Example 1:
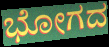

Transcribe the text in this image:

ಭೋಗದ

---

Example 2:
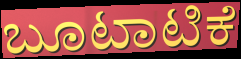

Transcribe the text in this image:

ಬೂಟಾಟಿಕೆ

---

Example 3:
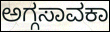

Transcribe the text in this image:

ಅಗ್ಗಸಾವಕಾ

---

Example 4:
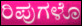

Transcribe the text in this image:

ರಿಪುಗಳೊ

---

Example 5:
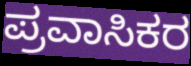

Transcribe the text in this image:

ಪ್ರವಾಸಿಕರ